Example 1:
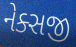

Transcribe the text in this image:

નેક્સજી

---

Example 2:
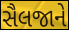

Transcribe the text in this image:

સૈલજાને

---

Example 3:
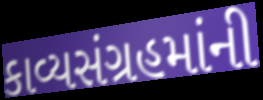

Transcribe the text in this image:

કાવ્યસંગ્રહમાંની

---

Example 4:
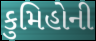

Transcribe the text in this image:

કુમિહોની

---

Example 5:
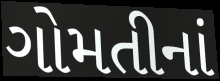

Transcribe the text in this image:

ગોમતીનાં